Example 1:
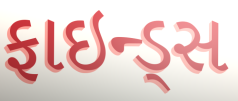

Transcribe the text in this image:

ફાઇન્ડ્સ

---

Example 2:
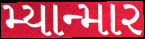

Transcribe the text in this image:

મ્યાન્માર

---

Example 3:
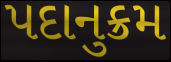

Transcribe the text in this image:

પદાનુક્રમ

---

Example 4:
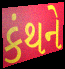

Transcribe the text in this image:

કંથને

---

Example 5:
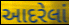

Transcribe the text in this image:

આદરેલાં